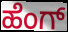
ಹೆಂಗ್